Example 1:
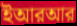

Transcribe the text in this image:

ইআরআর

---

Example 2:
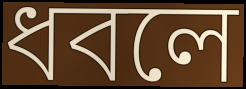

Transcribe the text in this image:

ধবলে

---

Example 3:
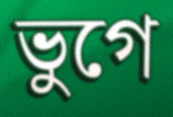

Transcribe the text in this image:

ভুগে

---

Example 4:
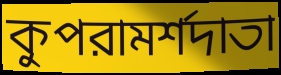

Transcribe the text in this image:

কুপরামর্শদাতা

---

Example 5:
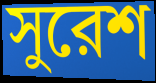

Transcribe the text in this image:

সুরেশ